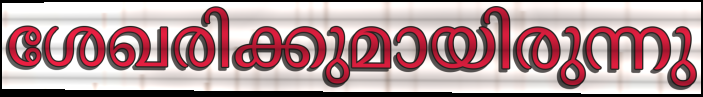
ശേഖരിക്കുമായിരുന്നു